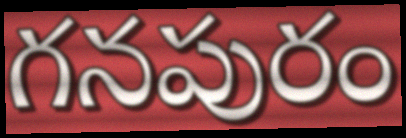
గనపురం